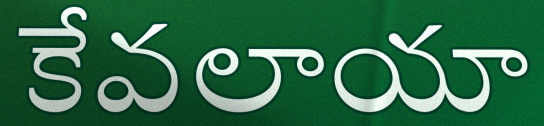
కేవలాయా